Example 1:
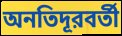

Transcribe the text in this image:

অনতিদূরবর্তী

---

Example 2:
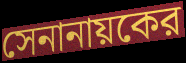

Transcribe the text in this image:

সেনানায়কের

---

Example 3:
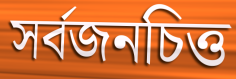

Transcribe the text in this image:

সর্বজনচিত্ত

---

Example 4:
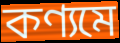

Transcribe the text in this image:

কণ্যমে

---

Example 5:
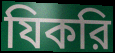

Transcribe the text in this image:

যিকরি